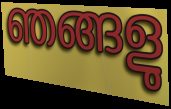
ഞങ്ങളു